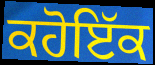
ਕਹੋਇੱਕ